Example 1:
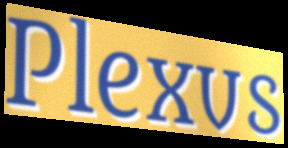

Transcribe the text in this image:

Plexus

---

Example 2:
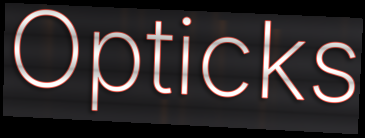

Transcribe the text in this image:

Opticks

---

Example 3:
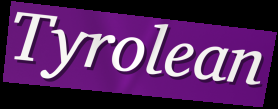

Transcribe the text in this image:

Tyrolean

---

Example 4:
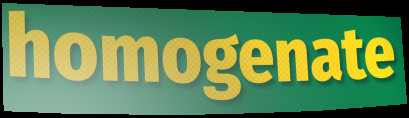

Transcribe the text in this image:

homogenate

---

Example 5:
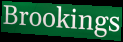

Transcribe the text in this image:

Brookings